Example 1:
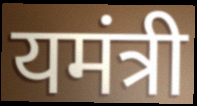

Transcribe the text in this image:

यमंत्री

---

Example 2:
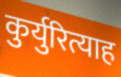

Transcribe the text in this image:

कुर्युरित्याह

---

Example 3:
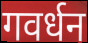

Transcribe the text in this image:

गवर्धन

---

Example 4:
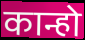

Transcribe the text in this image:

कान्हो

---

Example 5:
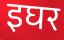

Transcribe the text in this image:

इघर